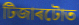
টিজাৰটোত